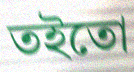
তইতো